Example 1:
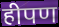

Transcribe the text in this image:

हीपण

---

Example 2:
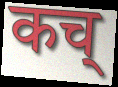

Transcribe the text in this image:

कच्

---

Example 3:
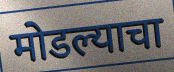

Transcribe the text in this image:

मोडल्याचा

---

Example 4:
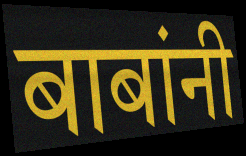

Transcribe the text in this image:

बाबांनी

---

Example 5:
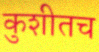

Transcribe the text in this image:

कुशीतच